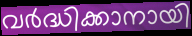
വർദ്ധിക്കാനായി